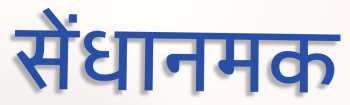
सेंधानमक